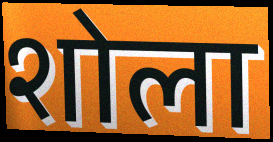
शोला